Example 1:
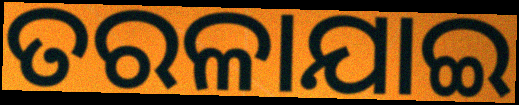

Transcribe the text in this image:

ତରଳାଯାଇ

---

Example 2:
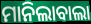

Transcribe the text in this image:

ମାନିଲାବାଲା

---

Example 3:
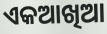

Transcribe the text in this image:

ଏକଆଖିଆ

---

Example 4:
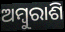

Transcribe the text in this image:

ଅମ୍ୱୁରାଶି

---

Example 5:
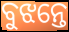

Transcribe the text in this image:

ବୁଝନ୍ତେ